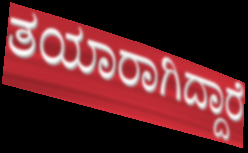
ತಯಾರಾಗಿದ್ದಾರೆ